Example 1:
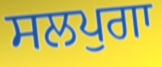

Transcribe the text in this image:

ਸਲਪੁਗਾ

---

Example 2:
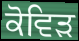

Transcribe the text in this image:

ਕੋਵਿਡ਼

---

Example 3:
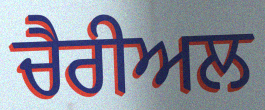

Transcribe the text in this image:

ਚੈਰੀਅਲ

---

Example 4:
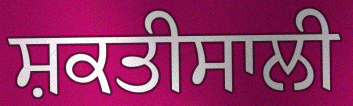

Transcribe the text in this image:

ਸ਼ਕਤੀਸਾਲੀ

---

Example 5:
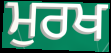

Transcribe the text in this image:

ਮੁਰਖ